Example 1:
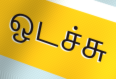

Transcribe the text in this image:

ஒடச்சு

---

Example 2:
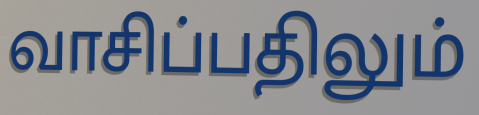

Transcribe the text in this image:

வாசிப்பதிலும்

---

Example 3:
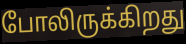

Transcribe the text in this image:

போலிருக்கிறது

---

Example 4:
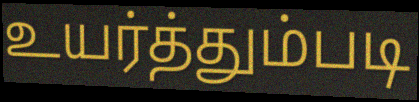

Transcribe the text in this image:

உயர்த்தும்படி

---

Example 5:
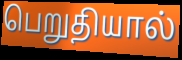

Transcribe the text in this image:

பெறுதியால்